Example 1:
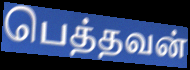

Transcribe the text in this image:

பெத்தவன்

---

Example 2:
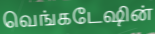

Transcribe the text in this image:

வெங்கடேஷின்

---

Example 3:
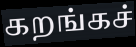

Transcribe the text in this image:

கறங்கச்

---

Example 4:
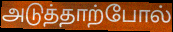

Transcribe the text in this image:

அடுத்தாற்போல்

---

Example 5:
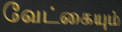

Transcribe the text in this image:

வேட்கையும்